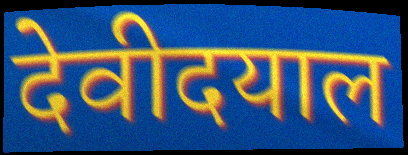
देवीदयाल